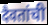
दैवतांची